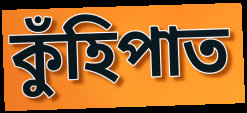
কুঁহিপাত